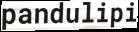
pandulipi